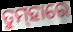
ତୁମ୍‌ହାରେ